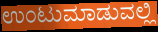
ಉಂಟುಮಾಡುವಲ್ಲಿ